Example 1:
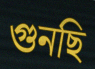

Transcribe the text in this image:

গুনছি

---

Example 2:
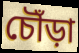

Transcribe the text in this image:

চৌঁড়া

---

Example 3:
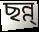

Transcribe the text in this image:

ছন্ন্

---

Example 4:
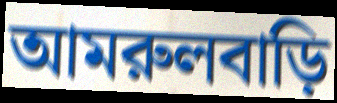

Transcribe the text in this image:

আমরুলবাড়ি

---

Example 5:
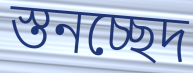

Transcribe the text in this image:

স্তনচ্ছেদ